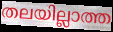
തലയില്ലാത്ത